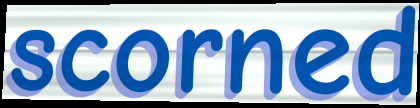
scorned